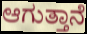
ಆಗುತ್ತಾನೆ